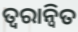
ତ୍ୱରାନ୍ୱିତ